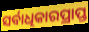
ସର୍ବାଧିକାରପ୍ରାପ୍ତ